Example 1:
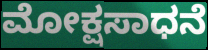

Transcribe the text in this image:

ಮೋಕ್ಷಸಾಧನೆ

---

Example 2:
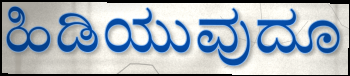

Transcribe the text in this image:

ಹಿಡಿಯುವುದೂ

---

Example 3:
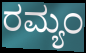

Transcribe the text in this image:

ರಮ್ಯಂ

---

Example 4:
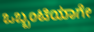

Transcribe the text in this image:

ಒಬ್ಬಂಟಿಯಾಗೇ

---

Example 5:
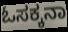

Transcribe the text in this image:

ಓಸಕ್ಕನಾ